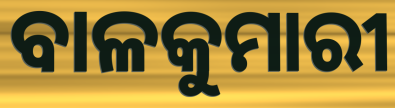
ବାଳକୁମାରୀ